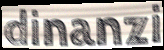
dinanzi